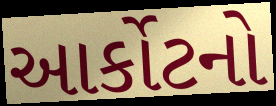
આર્કોટનો